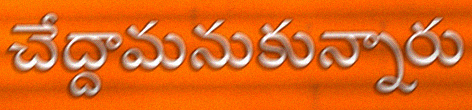
చేద్దామనుకున్నారు